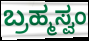
ಬ್ರಹ್ಮಸ್ವಂ